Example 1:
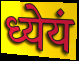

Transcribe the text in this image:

ध्येयं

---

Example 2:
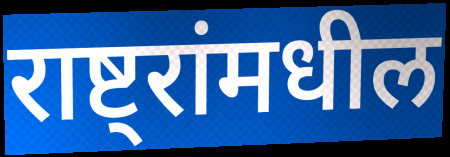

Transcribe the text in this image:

राष्ट्रांमधील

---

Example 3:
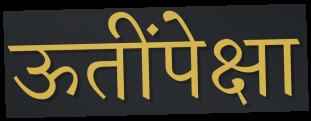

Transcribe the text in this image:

ऊतींपेक्षा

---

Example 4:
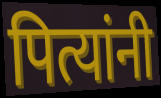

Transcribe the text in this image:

पित्यांनी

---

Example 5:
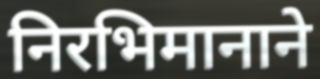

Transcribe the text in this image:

निरभिमानाने